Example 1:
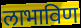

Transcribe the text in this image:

लाभाविण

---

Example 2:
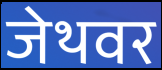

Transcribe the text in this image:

जेथवर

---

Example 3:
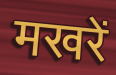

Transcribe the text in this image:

मखरें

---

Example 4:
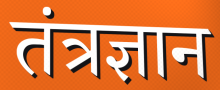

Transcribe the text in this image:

तंत्रज्ञान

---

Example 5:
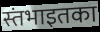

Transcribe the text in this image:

स्तंभाइतका